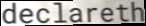
declareth